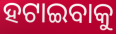
ହଟାଇବାକୁ